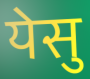
येसु